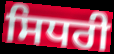
ਸਿਧਰੀ